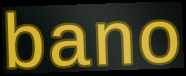
bano